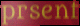
prsent